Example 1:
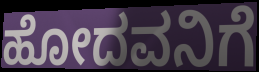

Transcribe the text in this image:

ಹೋದವನಿಗೆ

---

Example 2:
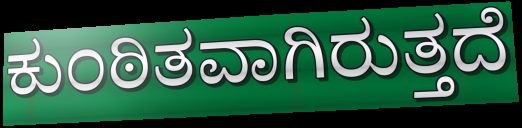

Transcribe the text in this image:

ಕುಂಠಿತವಾಗಿರುತ್ತದೆ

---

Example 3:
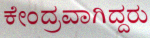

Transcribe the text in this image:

ಕೇಂದ್ರವಾಗಿದ್ದರು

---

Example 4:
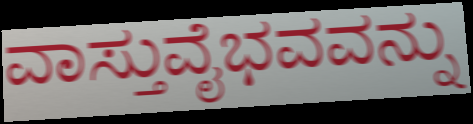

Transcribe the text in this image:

ವಾಸ್ತುವೈಭವವನ್ನು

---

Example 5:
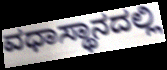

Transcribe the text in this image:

ವಧಾಸ್ಥಾನದಲ್ಲಿ